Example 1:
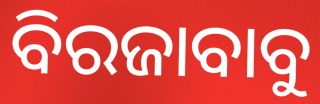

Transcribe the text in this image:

ବିରଜାବାବୁ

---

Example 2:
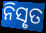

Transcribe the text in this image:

ନିସୃତ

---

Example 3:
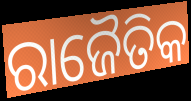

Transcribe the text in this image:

ରାଜୈତିକ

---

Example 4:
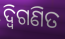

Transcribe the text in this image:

ଦ୍ୱିଗଣିତ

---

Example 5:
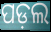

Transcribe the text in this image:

ପଡ଼ଲ